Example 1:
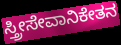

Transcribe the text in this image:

ಸ್ತ್ರೀಸೇವಾನಿಕೇತನ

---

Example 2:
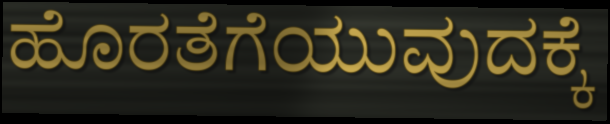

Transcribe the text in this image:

ಹೊರತೆಗೆಯುವುದಕ್ಕೆ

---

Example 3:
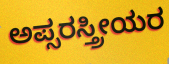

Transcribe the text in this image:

ಅಪ್ಸರಸ್ತ್ರೀಯರ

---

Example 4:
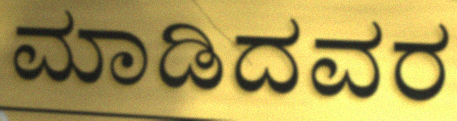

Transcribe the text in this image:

ಮಾಡಿದವರ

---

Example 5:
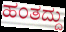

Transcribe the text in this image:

ಹಂತದ್ದು